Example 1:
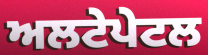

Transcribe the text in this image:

ਅਲਟੇਪੇਟਲ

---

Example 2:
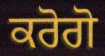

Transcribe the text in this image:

ਕਰੋਗੋ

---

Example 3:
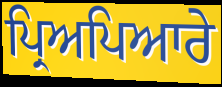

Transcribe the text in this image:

ਪ੍ਰਿਅਪਿਆਰੇ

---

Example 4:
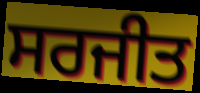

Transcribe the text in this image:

ਸਰਜੀਤ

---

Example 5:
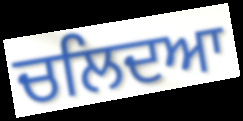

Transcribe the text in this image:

ਚਲਿਦਆ